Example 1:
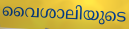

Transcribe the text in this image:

വൈശാലിയുടെ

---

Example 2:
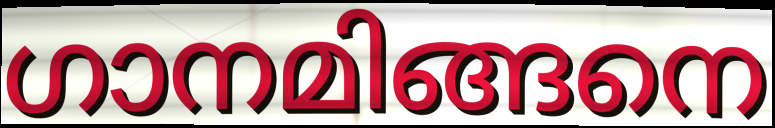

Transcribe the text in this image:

ഗാനമിങ്ങനെ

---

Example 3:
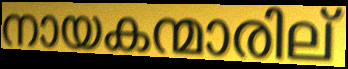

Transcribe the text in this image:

നായകന്മാരില്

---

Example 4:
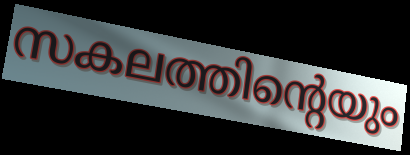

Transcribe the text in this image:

സകലത്തിന്റെയും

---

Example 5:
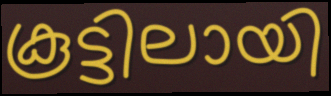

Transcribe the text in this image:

കൂട്ടിലായി